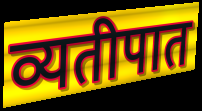
व्यतीपात